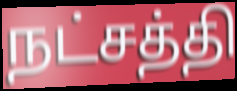
நட்சத்தி